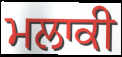
ਮਲਾਕੀ